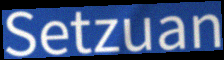
Setzuan